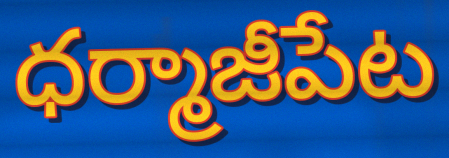
ధర్మాజీపేట